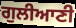
ਗੁਲੀਆਣੀ